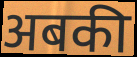
अबकी